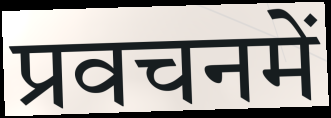
प्रवचनमें